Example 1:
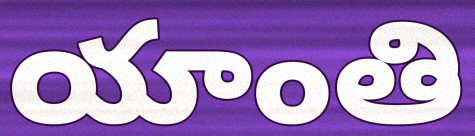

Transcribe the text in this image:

యాంతి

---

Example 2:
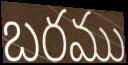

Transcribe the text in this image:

బరము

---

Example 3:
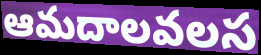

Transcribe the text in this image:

ఆమదాలవలస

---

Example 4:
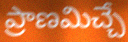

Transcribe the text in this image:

ప్రాణమిచ్చే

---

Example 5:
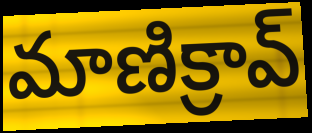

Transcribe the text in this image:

మాణిక్రావ్